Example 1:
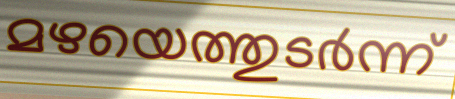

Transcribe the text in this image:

മഴയെത്തുടർന്ന്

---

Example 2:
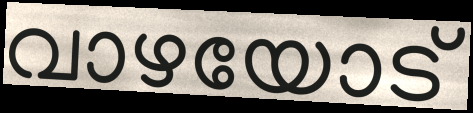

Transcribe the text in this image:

വാഴയോട്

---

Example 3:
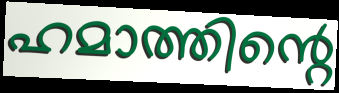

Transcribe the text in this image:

ഹമാത്തിന്റെ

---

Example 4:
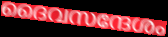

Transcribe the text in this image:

ദൈവസന്ദേശം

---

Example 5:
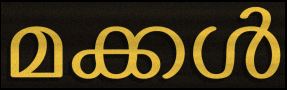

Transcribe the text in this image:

മക്കൾ